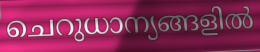
ചെറുധാന്യങ്ങളിൽ